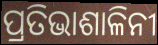
ପ୍ରତିଭାଶାଳିନୀ